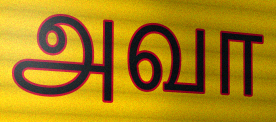
அவா